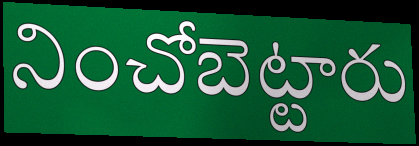
నించోబెట్టారు